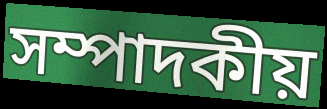
সম্পাদকীয়